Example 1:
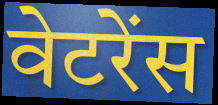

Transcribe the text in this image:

वेटरेंस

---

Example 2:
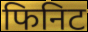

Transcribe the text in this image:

फिनिट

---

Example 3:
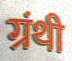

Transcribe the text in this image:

ग्रंथी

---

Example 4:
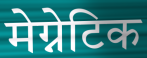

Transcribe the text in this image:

मेग्नेटिक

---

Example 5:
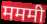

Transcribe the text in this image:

मममी